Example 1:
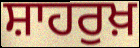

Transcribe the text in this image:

ਸ਼ਾਹਰੁਖ਼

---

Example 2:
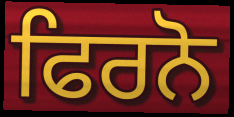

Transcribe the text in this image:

ਫਿਰਨੋ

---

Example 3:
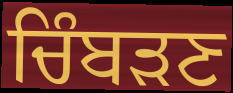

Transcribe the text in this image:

ਚਿੰਬੜਣ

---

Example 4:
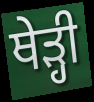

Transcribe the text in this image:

ਥੇੜ੍ਹੀ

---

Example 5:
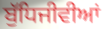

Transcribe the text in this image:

ਬੁੱਧਿਜੀਵੀਆਂ